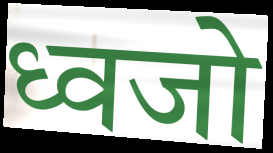
ध्वजो